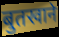
बुतखाने